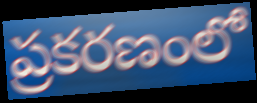
ప్రకరణంలో